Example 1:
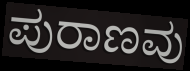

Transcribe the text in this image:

ಪುರಾಣವು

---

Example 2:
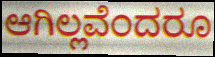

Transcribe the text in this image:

ಆಗಿಲ್ಲವೆಂದರೂ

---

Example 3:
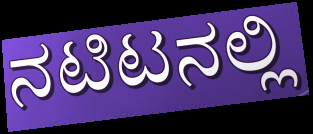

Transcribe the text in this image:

ನಟಿಟನಲ್ಲಿ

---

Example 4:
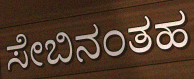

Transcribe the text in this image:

ಸೇಬಿನಂತಹ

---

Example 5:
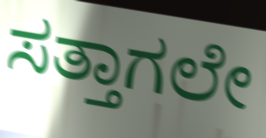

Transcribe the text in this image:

ಸತ್ತಾಗಲೇ